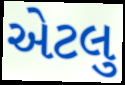
એટલુ